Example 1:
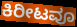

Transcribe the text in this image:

ಕಿರೀಟವೂ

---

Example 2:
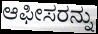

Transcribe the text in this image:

ಆಫೀಸರನ್ನು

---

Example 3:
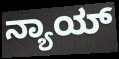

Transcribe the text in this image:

ನ್ಯಾಯ್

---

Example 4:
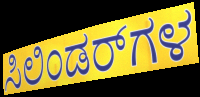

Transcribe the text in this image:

ಸಿಲಿಂಡರ್‌ಗಳ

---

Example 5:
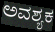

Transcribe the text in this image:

ಅವಶ್ಯಕ